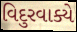
વિદુરવાક્યે